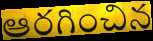
ఆరగించిన